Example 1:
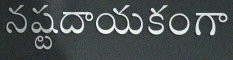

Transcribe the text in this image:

నష్టదాయకంగా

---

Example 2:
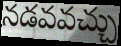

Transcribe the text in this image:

నడవవచ్చు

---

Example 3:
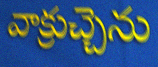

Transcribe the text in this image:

వాక్రుచ్చెను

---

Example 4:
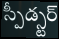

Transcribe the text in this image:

స్పీడ్స్టర్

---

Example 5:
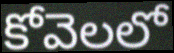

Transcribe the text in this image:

కోవెలలో